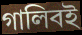
গালিবই